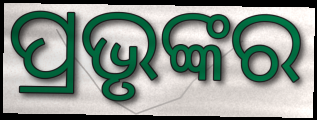
ପ୍ରଭୃଙ୍କର